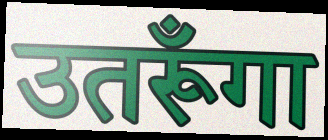
उतरूँगा